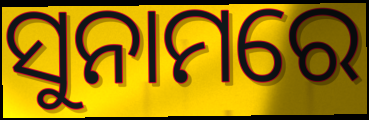
ସୁନାମରେ